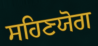
ਸਹਿਣਯੋਗ